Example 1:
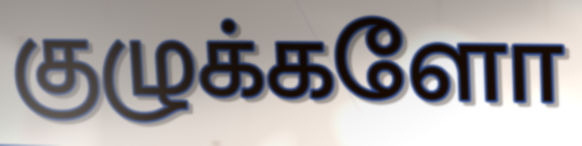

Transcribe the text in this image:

குழுக்களோ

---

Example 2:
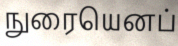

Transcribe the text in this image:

நுரையெனப்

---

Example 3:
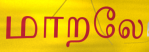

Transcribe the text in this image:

மாறலே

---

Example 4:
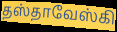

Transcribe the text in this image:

தஸ்தாவேஸ்கி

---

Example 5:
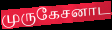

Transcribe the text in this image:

முருகேசனாட